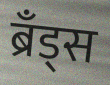
ब्रँड्स